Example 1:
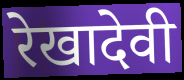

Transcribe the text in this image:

रेखादेवी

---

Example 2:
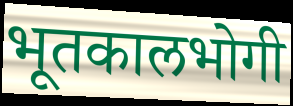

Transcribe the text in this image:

भूतकालभोगी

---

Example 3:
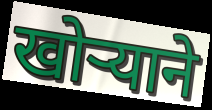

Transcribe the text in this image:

खोऱ्याने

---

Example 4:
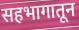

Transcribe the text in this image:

सहभागातून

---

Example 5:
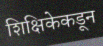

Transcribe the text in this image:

शिक्षिकेकडून